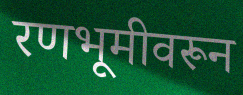
रणभूमीवरून